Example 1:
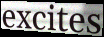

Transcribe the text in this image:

excites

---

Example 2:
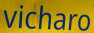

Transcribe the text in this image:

vicharo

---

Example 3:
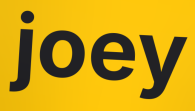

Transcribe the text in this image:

joey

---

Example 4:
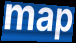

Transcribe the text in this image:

map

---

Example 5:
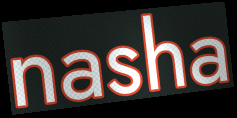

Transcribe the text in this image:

nasha